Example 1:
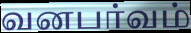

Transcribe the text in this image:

வனபர்வம்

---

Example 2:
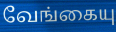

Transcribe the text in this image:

வேங்கையு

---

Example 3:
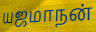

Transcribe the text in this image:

யஜமாநன்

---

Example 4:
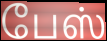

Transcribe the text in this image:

பேஸ்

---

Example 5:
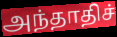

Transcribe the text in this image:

அந்தாதிச்